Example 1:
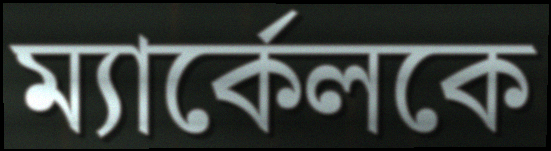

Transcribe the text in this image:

ম্যার্কেলকে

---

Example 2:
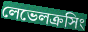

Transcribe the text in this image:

লেভেলক্রসিং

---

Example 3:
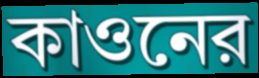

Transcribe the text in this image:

কাওনের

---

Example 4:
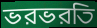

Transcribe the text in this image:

ভরভরতি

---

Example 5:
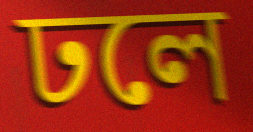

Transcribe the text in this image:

ঢলে